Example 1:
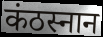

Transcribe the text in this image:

कंठस्नान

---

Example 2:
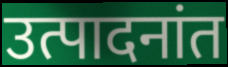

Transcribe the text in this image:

उत्पादनांत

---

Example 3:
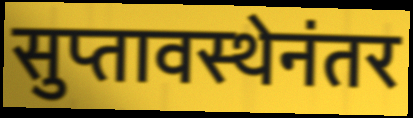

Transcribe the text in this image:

सुप्तावस्थेनंतर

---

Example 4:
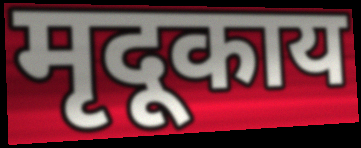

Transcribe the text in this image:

मृदूकाय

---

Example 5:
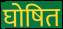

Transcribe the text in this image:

घोषित